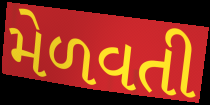
મેળવતી